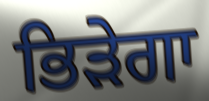
ਭਿੜੇਗਾ